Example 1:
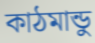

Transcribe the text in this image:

কাঠমান্ডু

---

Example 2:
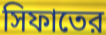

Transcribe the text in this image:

সিফাতের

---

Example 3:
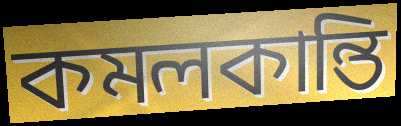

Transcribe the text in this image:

কমলকান্তি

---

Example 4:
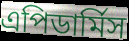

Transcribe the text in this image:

এপিডার্মিস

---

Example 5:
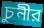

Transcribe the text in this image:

চুনীর